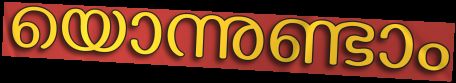
യൊന്നുണ്ടാം